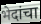
भेदांचा